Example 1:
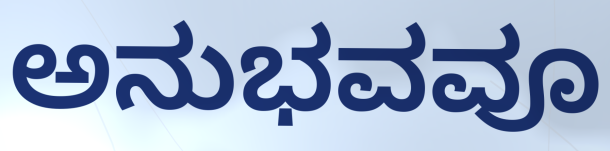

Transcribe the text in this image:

ಅನುಭವವೂ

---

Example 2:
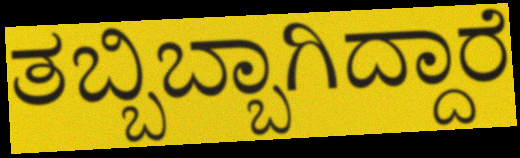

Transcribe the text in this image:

ತಬ್ಬಿಬ್ಬಾಗಿದ್ದಾರೆ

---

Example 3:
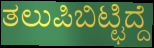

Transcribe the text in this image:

ತಲುಪಿಬಿಟ್ಟಿದ್ದೆ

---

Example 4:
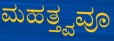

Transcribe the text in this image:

ಮಹತ್ತ್ವವೂ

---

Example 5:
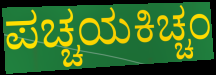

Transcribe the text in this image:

ಪಚ್ಚಯಕಿಚ್ಚಂ